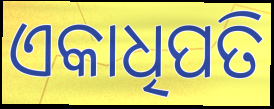
ଏକାଧିପତି